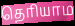
தெரியாம